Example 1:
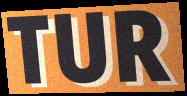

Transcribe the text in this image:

TUR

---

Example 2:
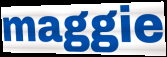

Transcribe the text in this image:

maggie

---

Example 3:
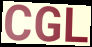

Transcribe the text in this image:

CGL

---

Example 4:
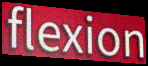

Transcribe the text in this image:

flexion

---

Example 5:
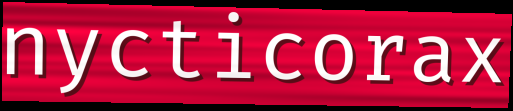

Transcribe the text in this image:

nycticorax